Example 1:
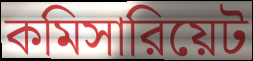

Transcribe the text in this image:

কমিসারিয়েট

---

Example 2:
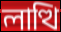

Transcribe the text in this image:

লাত্থি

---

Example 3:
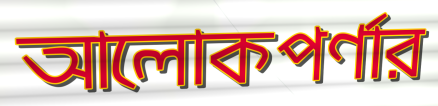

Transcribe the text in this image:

আলোকপর্ণার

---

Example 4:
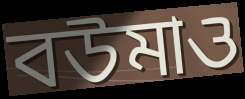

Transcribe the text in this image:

বউমাও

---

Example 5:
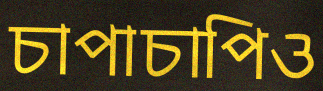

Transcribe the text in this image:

চাপাচাপিও